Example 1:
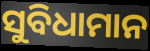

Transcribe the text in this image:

ସୁବିଧାମାନ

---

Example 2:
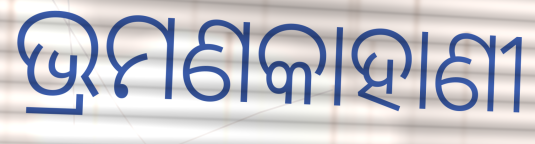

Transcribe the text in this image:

ଭ୍ରମଣକାହାଣୀ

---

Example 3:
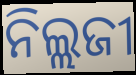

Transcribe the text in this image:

ନିଲ୍ଲଜୀ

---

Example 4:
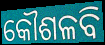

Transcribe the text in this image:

କୌଶଳବି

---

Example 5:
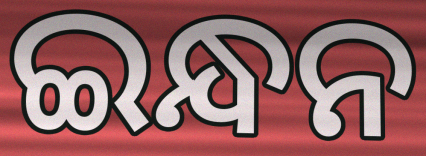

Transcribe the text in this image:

ଇନ୍ଧନ